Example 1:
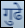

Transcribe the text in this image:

गुढे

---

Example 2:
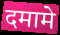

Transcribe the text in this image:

दमामे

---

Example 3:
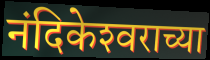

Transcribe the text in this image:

नंदिकेश्वराच्या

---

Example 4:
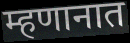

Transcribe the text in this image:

म्हणानात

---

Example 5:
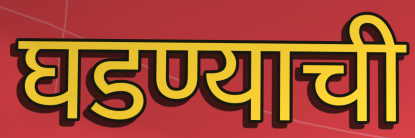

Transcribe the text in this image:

घडण्याची